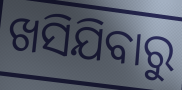
ଖସିଯିବାରୁ